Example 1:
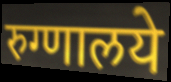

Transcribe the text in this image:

रुग्णालये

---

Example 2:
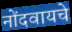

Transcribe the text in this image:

नोंदवायचे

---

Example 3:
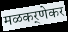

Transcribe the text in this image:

मळकर्णेकर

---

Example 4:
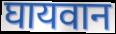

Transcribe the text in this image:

घायवान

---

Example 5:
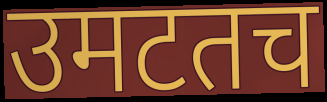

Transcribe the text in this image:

उमटतच